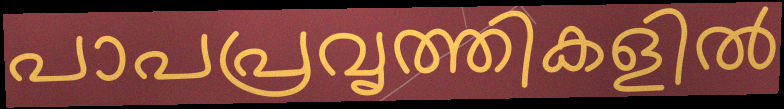
പാപപ്രവൃത്തികളിൽ